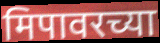
मिपावरच्या